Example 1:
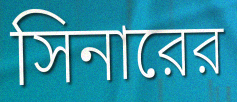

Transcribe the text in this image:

সিনারের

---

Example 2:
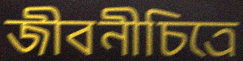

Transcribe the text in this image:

জীবনীচিত্রে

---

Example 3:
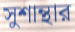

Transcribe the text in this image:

সুশান্থার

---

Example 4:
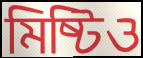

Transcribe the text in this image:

মিষ্টিও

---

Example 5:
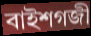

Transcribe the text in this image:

বাইশগজী